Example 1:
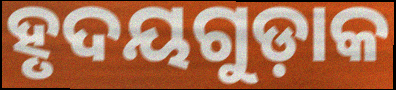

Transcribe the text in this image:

ହୃଦୟଗୁଡ଼ାକ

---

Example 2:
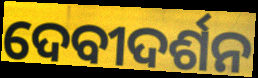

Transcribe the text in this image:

ଦେବୀଦର୍ଶନ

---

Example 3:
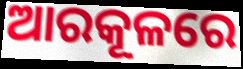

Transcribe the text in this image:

ଆରକୂଳରେ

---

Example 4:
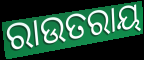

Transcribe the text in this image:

ରାଉତରାୟ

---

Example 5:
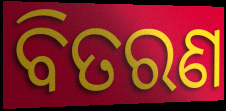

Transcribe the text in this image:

ବିତରଣ